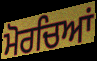
ਮੋਰਚਿਆਂ